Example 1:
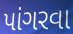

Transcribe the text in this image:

પાંગરવા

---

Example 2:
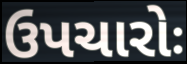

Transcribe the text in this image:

ઉપચારોઃ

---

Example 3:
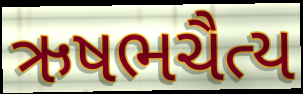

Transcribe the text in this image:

ઋષભચૈત્ય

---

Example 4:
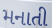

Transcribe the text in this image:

મનાતી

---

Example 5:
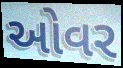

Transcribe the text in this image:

ઓવર